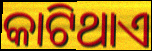
କାଟିଥାଏ